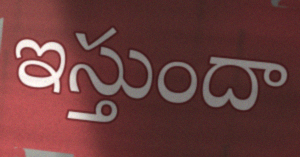
ఇస్తుందా